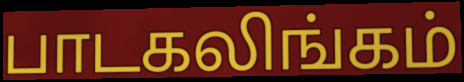
பாடகலிங்கம்